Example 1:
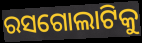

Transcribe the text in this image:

ରସଗୋଲାଟିକୁ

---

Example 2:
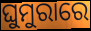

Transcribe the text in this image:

ଘୁମୁରାରେ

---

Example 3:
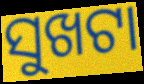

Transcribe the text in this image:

ସୁଖଟା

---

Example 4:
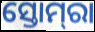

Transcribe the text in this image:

ସ୍ତୋମ୍‌ରା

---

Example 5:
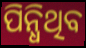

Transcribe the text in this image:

ପିନ୍ଧିଥିବ